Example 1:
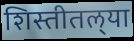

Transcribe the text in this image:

शिस्तीतल्या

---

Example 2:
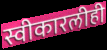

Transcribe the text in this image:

स्वीकारलीही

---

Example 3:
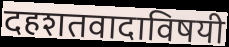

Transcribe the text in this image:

दहशतवादाविषयी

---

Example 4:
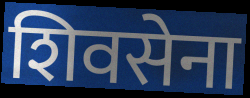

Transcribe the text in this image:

शिवसेना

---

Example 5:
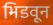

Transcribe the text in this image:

भिडवून